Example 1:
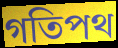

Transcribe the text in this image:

গতিপথ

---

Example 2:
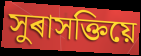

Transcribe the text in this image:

সুৰাসক্তিয়ে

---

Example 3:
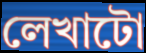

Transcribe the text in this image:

লেখাটো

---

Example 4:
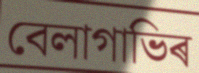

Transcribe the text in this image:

বেলাগাভিৰ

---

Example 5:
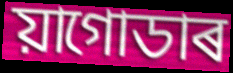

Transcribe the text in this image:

য়াগোডাৰ